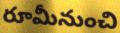
రూమీనుంచి